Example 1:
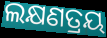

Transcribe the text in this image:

ଲକ୍ଷଣତ୍ରୟ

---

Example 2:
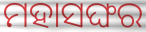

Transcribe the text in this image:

ମହାସଙ୍ଘର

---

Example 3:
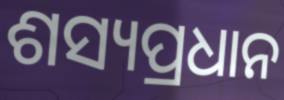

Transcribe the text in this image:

ଶସ୍ୟପ୍ରଧାନ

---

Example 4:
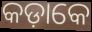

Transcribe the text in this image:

କଡ଼ାକେ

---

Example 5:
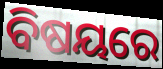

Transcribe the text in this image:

ବିଷୟରେ